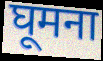
घूमना